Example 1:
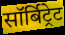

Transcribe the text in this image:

सॉर्बिट्रेट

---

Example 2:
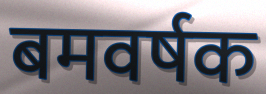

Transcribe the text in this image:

बमवर्षक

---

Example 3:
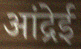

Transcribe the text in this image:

आंद्रेई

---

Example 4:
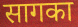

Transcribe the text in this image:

सागका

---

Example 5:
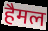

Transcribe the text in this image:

हैमल